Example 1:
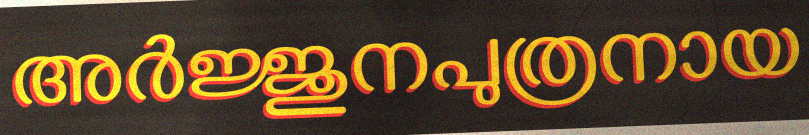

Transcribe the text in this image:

അർജ്ജുനപുത്രനായ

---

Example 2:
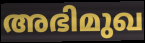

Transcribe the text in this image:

അഭിമുഖ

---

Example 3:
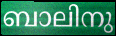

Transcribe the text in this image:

ബാലിനു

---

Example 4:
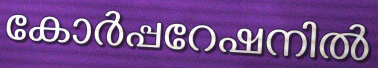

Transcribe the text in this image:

കോർപ്പറേഷനിൽ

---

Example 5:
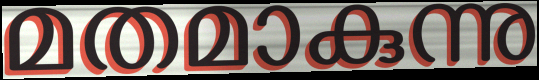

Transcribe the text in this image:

മതമാകുന്നു